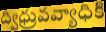
ద్విధ్రువవ్యాధికి